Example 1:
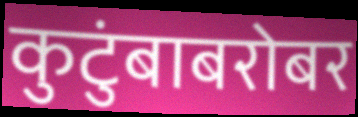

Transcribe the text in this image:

कुटुंबाबरोबर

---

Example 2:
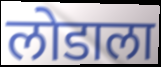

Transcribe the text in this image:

लोडाला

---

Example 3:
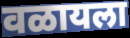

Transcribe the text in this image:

वळायला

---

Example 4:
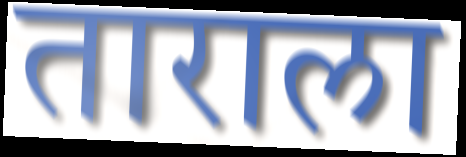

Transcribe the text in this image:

ताराला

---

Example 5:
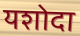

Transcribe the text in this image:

यशोदा